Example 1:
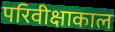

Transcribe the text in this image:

परिवीक्षाकाल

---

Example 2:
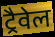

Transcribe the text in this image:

ट्रैवेल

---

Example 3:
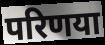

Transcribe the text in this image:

परिणया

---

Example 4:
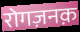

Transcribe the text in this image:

रोगज़नक़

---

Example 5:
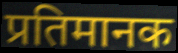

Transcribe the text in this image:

प्रतिमानक